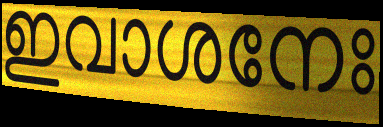
ഇവാശനേഃ